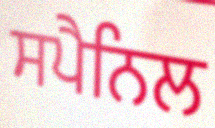
ਸਪੈਨਿਲ